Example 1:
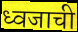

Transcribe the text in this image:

ध्वजाची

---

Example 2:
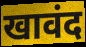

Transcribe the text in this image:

खावंद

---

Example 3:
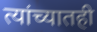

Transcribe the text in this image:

त्यांच्यातही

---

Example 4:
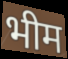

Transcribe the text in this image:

भीम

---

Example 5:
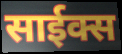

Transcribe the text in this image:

साईक्स